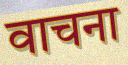
वाचना